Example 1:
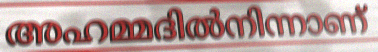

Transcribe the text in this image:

അഹമ്മദിൽനിന്നാണ്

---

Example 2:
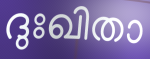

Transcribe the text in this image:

ദുഃഖിതാ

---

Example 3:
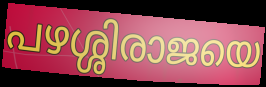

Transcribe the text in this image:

പഴശ്ശിരാജയെ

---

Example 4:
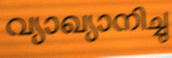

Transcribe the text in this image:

വ്യാഖ്യാനിച്ചു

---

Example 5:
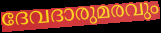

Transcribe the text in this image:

ദേവദാരുമരവും